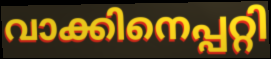
വാക്കിനെപ്പറ്റി